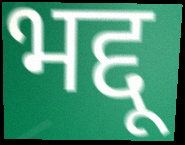
भद्दू